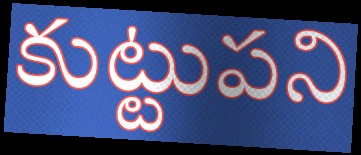
కుట్టుపని